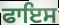
ਫਾਇਸ